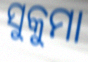
ସୁକୁମା